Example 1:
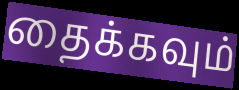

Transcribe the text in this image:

தைக்கவும்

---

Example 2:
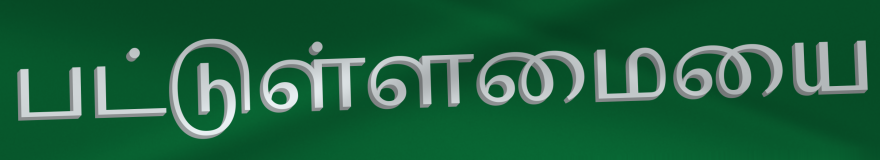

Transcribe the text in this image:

பட்டுள்ளமையை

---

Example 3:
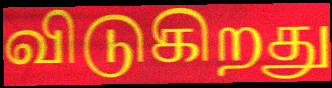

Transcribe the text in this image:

விடுகிறது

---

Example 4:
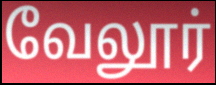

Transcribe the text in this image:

வேலூர்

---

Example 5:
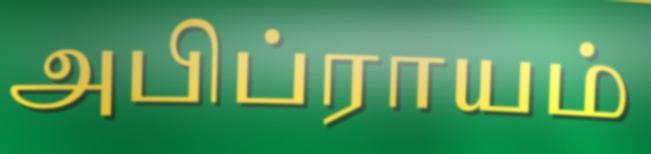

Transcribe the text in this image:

அபிப்ராயம்